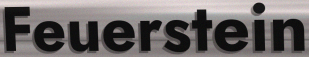
Feuerstein